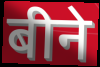
बीने